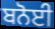
ਬਨੋਈ